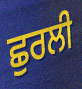
ਛੁਰਲੀ